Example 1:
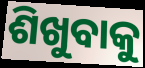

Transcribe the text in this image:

ଶିଖୁବାକୁ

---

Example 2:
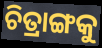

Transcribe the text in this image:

ଚିତ୍ରାଙ୍ଗକୁ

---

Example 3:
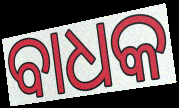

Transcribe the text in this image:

ବାଧକ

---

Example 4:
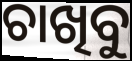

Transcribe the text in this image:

ଚାଖିବୁ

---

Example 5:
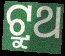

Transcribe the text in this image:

ଟ୍ରୁଥ